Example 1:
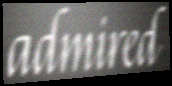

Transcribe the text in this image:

admired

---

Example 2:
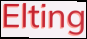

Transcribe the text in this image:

Elting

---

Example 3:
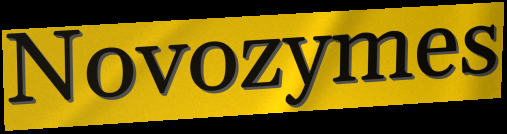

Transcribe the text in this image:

Novozymes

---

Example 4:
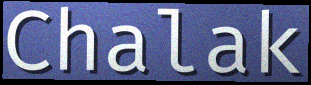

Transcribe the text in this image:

Chalak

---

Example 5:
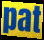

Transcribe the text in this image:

pat